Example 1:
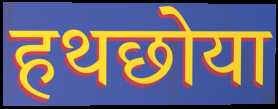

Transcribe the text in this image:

हथछोया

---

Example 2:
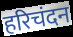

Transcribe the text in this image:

हरिचंदन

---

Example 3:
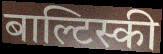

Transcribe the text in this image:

बाल्टिस्की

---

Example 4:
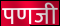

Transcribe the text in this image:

पणजी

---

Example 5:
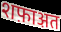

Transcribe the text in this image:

शफ़ाअ़त